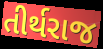
તીર્થરાજ